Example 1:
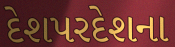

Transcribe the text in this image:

દેશપરદેશના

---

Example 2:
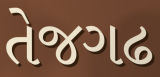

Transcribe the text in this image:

તેજગઢ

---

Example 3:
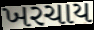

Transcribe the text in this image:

ખરચાય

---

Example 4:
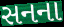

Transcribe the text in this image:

સનના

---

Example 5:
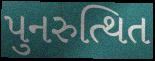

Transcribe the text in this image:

પુનરુત્થિત